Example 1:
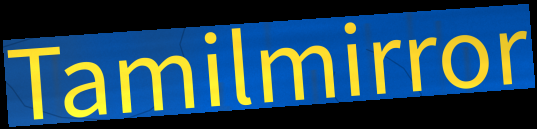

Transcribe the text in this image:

Tamilmirror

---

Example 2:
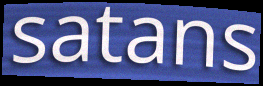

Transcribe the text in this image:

satans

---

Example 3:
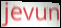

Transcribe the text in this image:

jevun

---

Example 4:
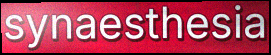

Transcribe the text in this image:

synaesthesia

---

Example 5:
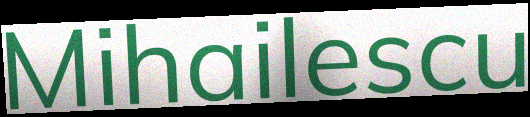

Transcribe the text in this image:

Mihailescu